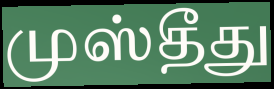
முஸ்தீது